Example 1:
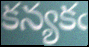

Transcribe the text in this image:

కన్యకఁ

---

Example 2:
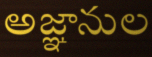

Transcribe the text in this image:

అజ్ఞానుల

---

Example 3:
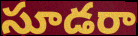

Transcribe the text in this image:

సూడరా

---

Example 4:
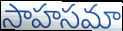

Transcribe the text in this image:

సాహసమా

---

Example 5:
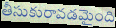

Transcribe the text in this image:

తీసుకురావడమైంది